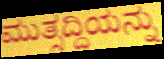
ಮುತ್ಸದ್ದಿಯನ್ನು